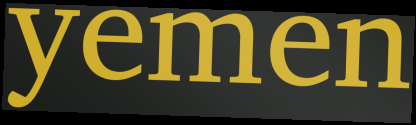
yemen